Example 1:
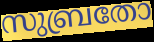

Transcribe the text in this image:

സുബ്രതോ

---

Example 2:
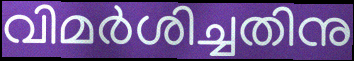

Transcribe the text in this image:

വിമർശിച്ചതിനു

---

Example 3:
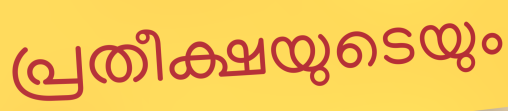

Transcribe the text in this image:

പ്രതീക്ഷയുടെയും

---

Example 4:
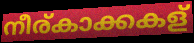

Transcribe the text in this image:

നീര്കാക്കകള്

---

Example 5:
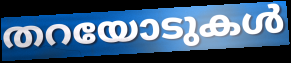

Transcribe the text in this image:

തറയോടുകൾ